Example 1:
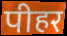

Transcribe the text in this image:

पीहर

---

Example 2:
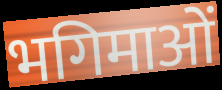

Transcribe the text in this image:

भगिमाओं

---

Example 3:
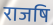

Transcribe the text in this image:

राजषि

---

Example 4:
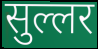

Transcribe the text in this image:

सुल्लर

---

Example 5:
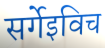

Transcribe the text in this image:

सर्गेइविच